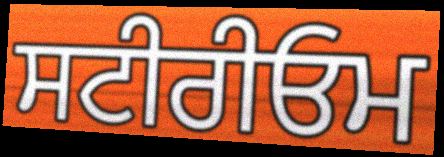
ਸਟੀਰੀਓਮ